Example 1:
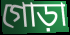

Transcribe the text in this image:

গোড়া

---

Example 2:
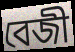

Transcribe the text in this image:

বেজী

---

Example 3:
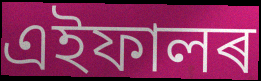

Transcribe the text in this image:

এইফালৰ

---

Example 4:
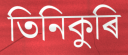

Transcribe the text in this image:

তিনিকুৰি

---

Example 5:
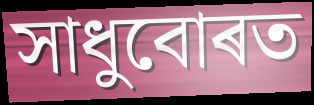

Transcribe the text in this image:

সাধুবোৰত